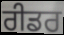
ਰੀਡਰ